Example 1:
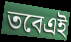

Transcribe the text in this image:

তবেএই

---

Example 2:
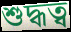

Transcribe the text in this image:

শুদ্ধত্ব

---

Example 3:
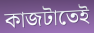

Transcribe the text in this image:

কাজটাতেই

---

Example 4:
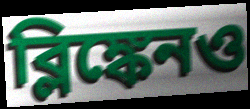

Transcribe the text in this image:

ব্লিঙ্কেনও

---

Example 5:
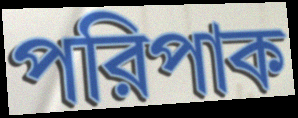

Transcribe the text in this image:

পরিপাক